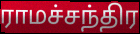
ராமச்சந்திர